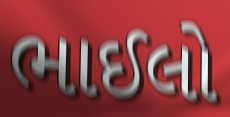
ભાઈલો